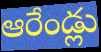
ఆరేండ్లు